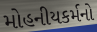
મોહનીયકર્મનો